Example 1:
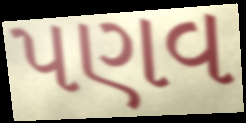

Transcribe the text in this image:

પણવ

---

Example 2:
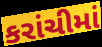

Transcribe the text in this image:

કરાંચીમાં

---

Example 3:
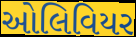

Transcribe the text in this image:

ઓલિવિયર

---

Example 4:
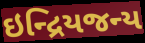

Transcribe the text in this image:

ઇન્દ્રિયજન્ય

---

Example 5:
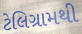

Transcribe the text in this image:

ટેલિગ્રામથી